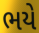
ભયે